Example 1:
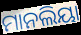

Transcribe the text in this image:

ମାନଲିୟା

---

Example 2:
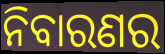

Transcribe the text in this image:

ନିବାରଣର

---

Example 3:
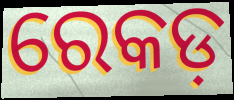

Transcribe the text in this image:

ରେକଡ଼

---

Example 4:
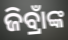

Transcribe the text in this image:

ଜିବ୍ରାଁଙ୍କ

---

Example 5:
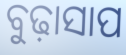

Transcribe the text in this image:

ବୁଢ଼ାସାପ